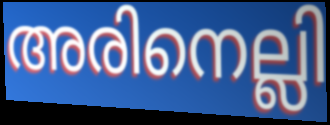
അരിനെല്ലി